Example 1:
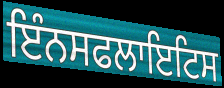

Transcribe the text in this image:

ਇੰਨਸਫਲਾਇਟਿਸ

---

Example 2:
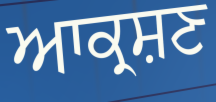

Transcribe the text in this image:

ਆਕ੍ਰਸ਼ਣ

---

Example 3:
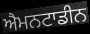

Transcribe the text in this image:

ਐਮਨਟਾਡੀਨ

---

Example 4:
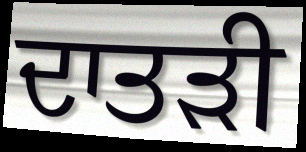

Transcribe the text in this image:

ਦਾਤੜੀ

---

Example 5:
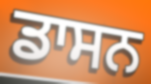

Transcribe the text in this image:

ਡਾਸਨ